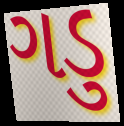
ગડુ